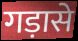
गड़ासे